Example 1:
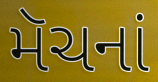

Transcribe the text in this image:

મૅચનાં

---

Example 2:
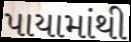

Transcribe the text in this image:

પાયામાંથી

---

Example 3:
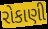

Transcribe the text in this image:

રોકાણી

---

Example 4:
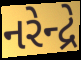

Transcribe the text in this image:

નરેન્દ્રે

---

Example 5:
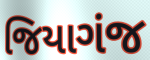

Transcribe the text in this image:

જિયાગંજ